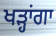
ਖੜ੍ਹਾਂਗਾ